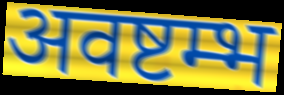
अवष्टम्भ